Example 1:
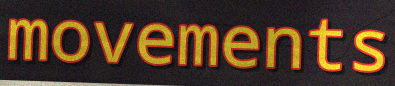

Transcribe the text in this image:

movements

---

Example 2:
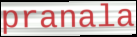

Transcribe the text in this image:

pranala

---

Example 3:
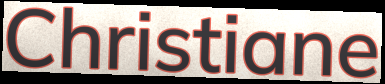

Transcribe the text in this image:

Christiane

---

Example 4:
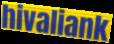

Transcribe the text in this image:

hivaliank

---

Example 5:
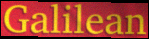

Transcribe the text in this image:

Galilean